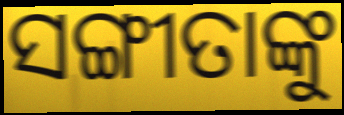
ସଙ୍ଗୀତାଙ୍କୁ